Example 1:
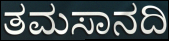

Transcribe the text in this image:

ತಮಸಾನದಿ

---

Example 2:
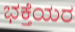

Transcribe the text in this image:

ಭಕ್ತೆಯರ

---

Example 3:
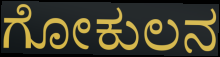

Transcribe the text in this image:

ಗೋಕುಲನ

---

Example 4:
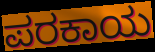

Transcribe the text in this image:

ಪರಕಾಯ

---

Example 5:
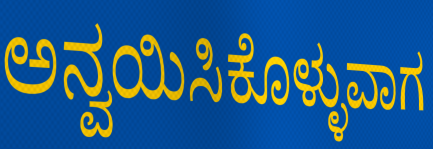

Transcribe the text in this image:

ಅನ್ವಯಿಸಿಕೊಳ್ಳುವಾಗ